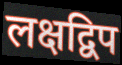
लक्षद्विप